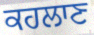
ਕਹਲਾਣ